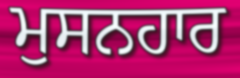
ਮੁਸਨਹਾਰ